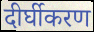
दीर्घीकरण